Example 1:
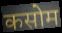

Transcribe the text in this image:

कसोम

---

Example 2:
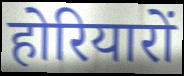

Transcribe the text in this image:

होरियारों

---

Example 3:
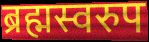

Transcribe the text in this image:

ब्रह्मस्वरुप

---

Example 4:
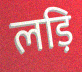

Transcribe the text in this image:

लड़ि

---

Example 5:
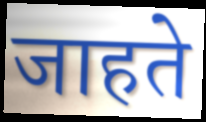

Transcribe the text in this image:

जाहते